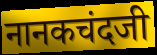
नानकचंदजी